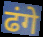
ढंगे